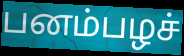
பனம்பழச்